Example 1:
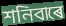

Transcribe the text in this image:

শনিবাৰে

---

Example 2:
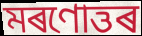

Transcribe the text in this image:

মৰণোত্তৰ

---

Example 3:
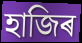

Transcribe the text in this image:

হাজিৰ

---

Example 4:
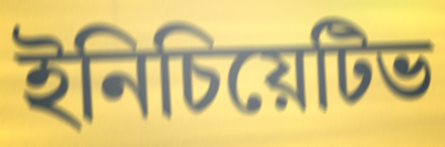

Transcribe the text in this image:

ইনিচিয়েটিভ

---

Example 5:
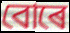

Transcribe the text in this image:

বোৰে